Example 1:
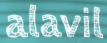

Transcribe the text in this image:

alavil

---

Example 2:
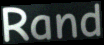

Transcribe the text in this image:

Rand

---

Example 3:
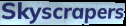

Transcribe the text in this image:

Skyscrapers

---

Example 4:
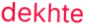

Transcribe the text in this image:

dekhte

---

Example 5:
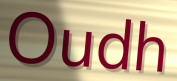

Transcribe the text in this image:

Oudh